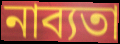
নাব্যতা